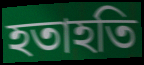
হতাহতি